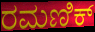
ರಮಣಿಕ್